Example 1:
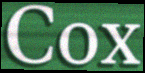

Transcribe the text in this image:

Cox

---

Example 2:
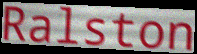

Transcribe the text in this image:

Ralston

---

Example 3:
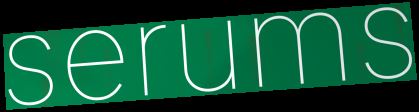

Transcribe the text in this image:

serums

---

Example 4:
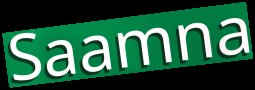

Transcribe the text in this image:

Saamna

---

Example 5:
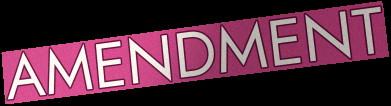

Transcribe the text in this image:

AMENDMENT